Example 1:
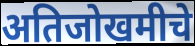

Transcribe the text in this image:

अतिजोखमीचे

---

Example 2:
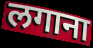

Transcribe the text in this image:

लगाना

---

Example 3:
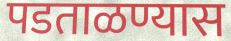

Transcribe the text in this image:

पडताळण्यास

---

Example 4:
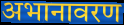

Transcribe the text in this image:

अभानावरण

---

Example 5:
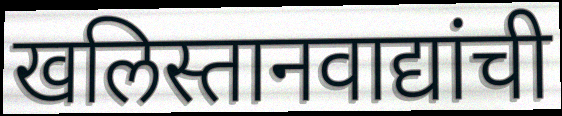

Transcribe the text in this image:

खलिस्तानवाद्यांची